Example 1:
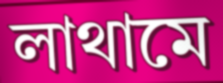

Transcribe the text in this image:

লাথামে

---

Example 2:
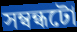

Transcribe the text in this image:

সম্বন্ধটো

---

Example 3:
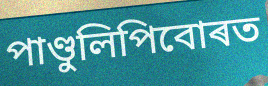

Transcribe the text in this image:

পাণ্ডুলিপিবোৰত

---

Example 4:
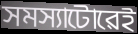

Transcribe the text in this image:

সমস্যাটোৱেই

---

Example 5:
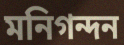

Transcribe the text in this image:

মনিগন্দন